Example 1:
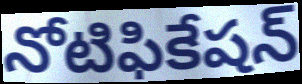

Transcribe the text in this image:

నోటిఫికేషన్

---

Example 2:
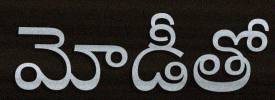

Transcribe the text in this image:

మోడీతో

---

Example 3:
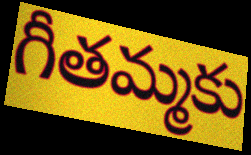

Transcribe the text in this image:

గీతమ్మకు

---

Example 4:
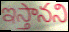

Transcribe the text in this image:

ఇస్తానని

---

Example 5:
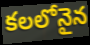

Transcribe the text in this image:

కలలోనైన